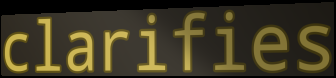
clarifies